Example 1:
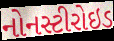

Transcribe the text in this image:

નોનસ્ટીરોઇડ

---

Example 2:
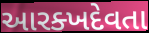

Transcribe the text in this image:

આરક્ખદેવતા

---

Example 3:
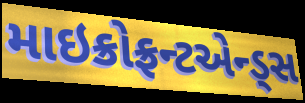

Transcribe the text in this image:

માઇક્રોફ્રન્ટએન્ડ્સ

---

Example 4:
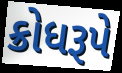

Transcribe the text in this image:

ક્રોધરૂપે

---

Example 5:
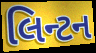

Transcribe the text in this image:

લિન્ટન